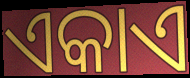
ଏକାଏ